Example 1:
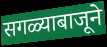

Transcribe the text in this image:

सगळ्याबाजूने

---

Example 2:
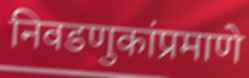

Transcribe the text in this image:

निवडणुकांप्रमाणे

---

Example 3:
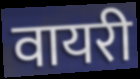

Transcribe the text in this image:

वायरी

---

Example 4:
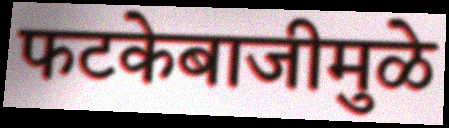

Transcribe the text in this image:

फटकेबाजीमुळे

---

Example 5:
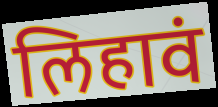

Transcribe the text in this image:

लिहावं